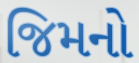
જિમનો